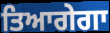
ਤਿਆਗੇਗਾ